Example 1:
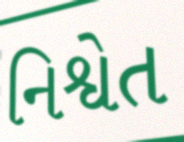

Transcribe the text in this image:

નિશ્વેત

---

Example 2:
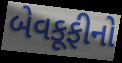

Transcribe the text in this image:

બેવકૂફીનો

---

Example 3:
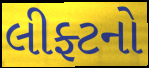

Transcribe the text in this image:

લીફ્ટનો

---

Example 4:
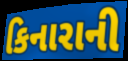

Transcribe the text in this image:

કિનારાની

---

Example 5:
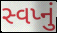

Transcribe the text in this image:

સ્વપ્નું